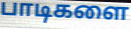
பாடிகளை